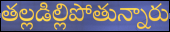
తల్లడిల్లిపోతున్నారు